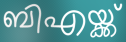
ബിഎയ്ക്ക്